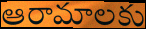
ఆరామాలకు